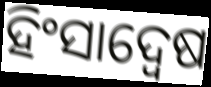
ହିଂସାଦ୍ୱେଷ